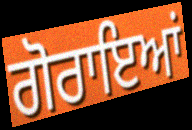
ਗੋਰਾਇਆਂ